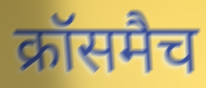
क्रॉसमैच